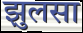
झुलसा